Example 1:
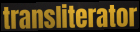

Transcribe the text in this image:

transliterator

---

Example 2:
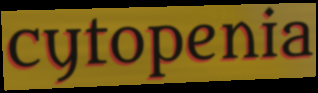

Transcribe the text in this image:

cytopenia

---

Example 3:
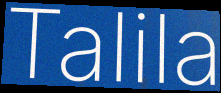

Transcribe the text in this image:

Talila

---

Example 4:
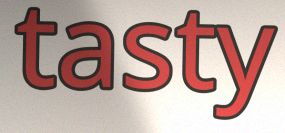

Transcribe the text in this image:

tasty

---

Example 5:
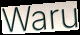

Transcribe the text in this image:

Waru